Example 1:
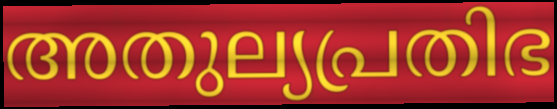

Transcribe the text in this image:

അതുല്യപ്രതിഭ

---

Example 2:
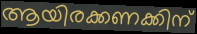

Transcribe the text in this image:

ആയിരക്കണക്കിന്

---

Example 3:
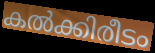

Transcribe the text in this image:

കൽക്കിരീടം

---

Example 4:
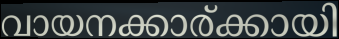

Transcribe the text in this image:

വായനക്കാര്ക്കായി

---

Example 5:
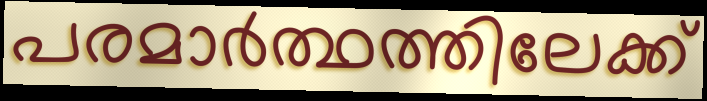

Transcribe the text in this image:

പരമാർത്ഥത്തിലേക്ക്